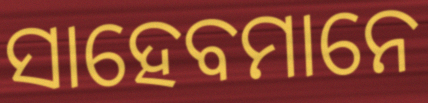
ସାହେବମାନେ